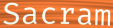
Sacram